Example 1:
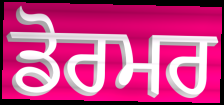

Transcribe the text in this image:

ਡੋਰਮਰ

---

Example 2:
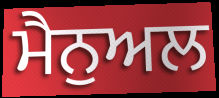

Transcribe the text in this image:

ਮੈਨੁਅਲ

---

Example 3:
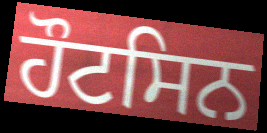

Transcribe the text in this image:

ਹੌਟਸਿਨ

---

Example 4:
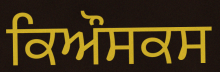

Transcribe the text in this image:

ਕਿਔਸਕਸ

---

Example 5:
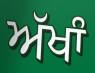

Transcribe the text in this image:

ਅੱਖਾੰ